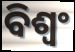
ବିଶ୍ୱଂ